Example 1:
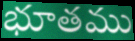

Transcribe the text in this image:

భూతము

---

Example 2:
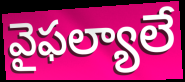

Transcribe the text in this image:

వైఫల్యాలే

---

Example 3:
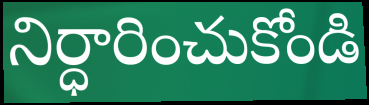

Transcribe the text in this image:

నిర్ధారించుకోండి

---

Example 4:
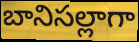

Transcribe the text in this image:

బానిసల్లాగా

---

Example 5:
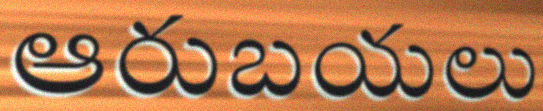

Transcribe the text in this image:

ఆరుబయలు